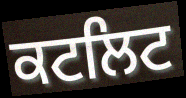
ਕਟਲਿਟ